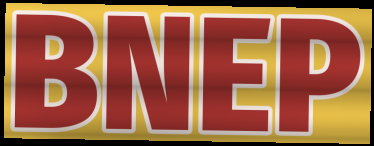
BNEP